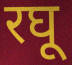
रघू